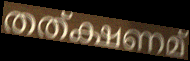
തത്ക്ഷണമ്